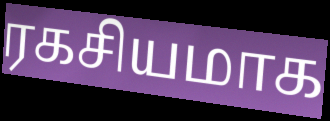
ரகசியமாக